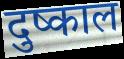
दुष्काल